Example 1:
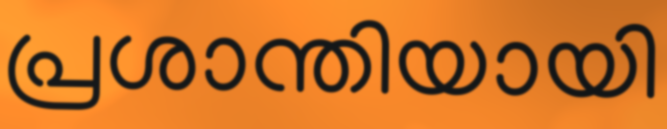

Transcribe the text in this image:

പ്രശാന്തിയായി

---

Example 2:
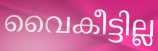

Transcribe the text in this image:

വൈകീട്ടില്ല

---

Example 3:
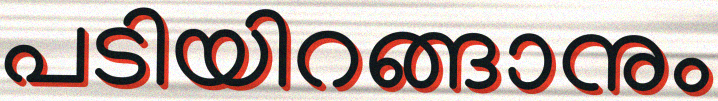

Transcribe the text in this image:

പടിയിറങ്ങാനും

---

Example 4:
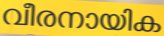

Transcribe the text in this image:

വീരനായിക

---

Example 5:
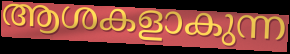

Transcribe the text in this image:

ആശകളാകുന്ന